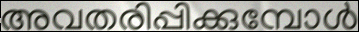
അവതരിപ്പിക്കുമ്പോൾ